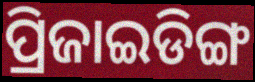
ପ୍ରିଜାଇଡିଙ୍ଗ